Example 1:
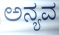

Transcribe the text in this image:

ಅನ್ಯವ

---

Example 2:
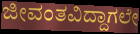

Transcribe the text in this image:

ಜೀವಂತವಿದ್ದಾಗಲೇ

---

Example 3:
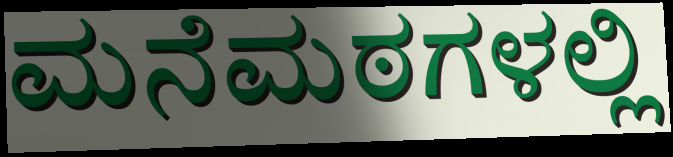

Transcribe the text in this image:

ಮನೆಮಠಗಳಲ್ಲಿ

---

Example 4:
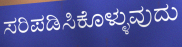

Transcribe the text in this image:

ಸರಿಪಡಿಸಿಕೊಳ್ಳುವುದು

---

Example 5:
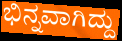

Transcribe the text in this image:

ಭಿನ್ನವಾಗಿದ್ದು